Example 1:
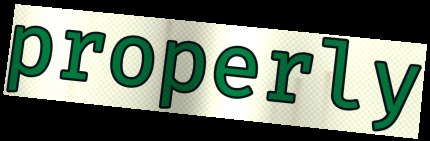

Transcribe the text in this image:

properly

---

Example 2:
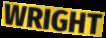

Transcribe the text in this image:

WRIGHT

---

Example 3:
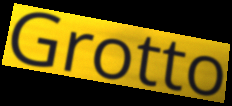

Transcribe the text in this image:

Grotto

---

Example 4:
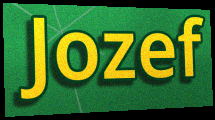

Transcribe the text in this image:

Jozef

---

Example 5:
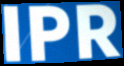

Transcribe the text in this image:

IPR